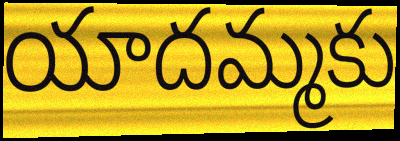
యాదమ్మకు